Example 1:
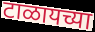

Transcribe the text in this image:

टाळायच्या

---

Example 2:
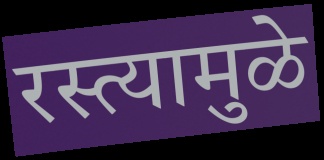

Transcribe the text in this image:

रस्त्यामुळे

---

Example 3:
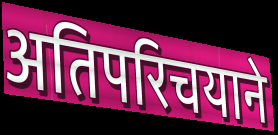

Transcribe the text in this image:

अतिपरिचयाने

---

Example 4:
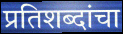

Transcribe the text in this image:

प्रतिशब्दांचा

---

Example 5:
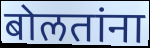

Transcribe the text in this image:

बोलतांना